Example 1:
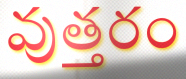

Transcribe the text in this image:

వుత్తరం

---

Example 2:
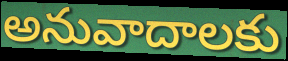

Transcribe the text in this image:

అనువాదాలకు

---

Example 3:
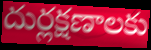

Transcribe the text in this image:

దుర్లక్షణాలకు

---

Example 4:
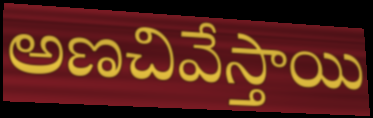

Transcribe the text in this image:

అణచివేస్తాయి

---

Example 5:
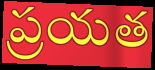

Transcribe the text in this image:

ప్రయత